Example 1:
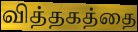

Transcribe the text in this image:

வித்தகத்தை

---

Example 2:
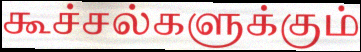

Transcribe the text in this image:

கூச்சல்களுக்கும்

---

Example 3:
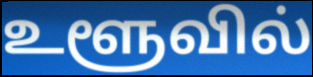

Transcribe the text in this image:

உளூவில்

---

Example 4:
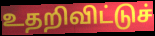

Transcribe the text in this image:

உதறிவிட்டுச்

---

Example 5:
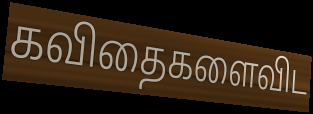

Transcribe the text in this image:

கவிதைகளைவிட